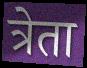
त्रेता